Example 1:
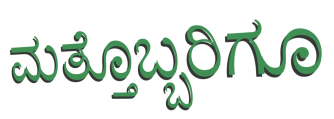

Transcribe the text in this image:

ಮತ್ತೊಬ್ಬರಿಗೂ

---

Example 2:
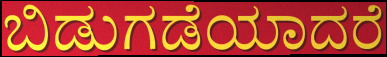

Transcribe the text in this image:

ಬಿಡುಗಡೆಯಾದರೆ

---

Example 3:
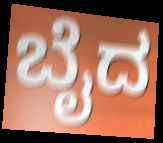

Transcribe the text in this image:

ಬೈದ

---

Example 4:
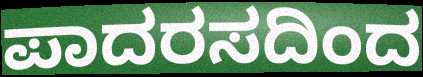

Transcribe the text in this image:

ಪಾದರಸದಿಂದ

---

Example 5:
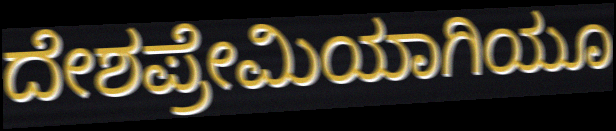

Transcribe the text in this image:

ದೇಶಪ್ರೇಮಿಯಾಗಿಯೂ